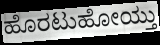
ಹೊರಟುಹೋಯ್ತು